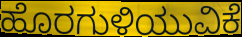
ಹೊರಗುಳಿಯುವಿಕೆ